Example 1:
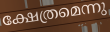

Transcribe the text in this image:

ക്ഷേത്രമെന്നു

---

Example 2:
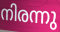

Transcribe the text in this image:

നിരന്നു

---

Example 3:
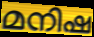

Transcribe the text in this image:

മനിഷ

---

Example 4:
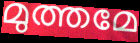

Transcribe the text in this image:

മുത്തമേ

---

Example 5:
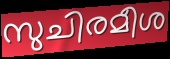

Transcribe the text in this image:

സുചിരമീശ